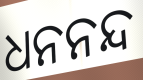
ଧନନନ୍ଦ